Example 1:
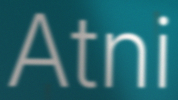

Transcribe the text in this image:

Atni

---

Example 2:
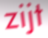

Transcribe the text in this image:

zijt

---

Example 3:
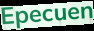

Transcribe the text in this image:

Epecuen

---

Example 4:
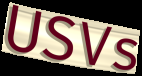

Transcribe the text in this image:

USVs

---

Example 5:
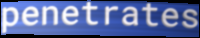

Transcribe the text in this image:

penetrates